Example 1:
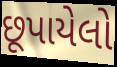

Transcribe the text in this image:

છૂપાયેલો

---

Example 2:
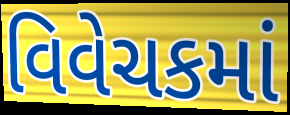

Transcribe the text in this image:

વિવેચકમાં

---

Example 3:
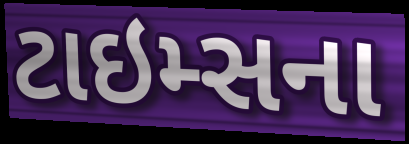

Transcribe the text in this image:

ટાઇમ્સના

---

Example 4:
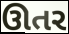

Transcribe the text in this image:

ઊતર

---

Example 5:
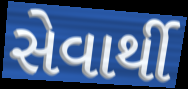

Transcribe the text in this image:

સેવાર્થી